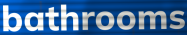
bathrooms